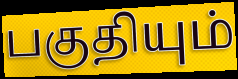
பகுதியும்